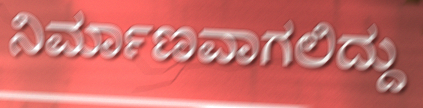
ನಿರ್ಮಾಣವಾಗಲಿದ್ದು